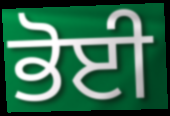
ਭੋਈ